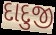
દાદુજી